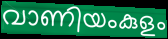
വാണിയംകുളം